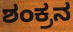
ಶಂಕ್ರನ